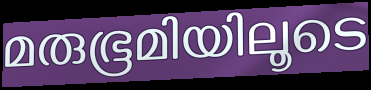
മരുഭൂമിയിലൂടെ